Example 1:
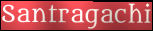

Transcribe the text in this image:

Santragachi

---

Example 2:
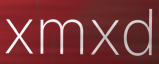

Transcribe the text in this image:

xmxd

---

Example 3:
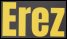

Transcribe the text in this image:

Erez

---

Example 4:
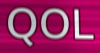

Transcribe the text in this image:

QOL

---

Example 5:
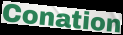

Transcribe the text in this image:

Conation